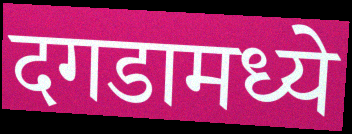
दगडामध्ये